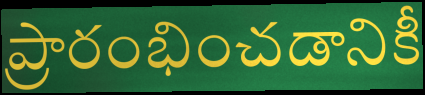
ప్రారంభించడానికీ